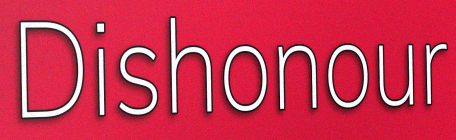
Dishonour